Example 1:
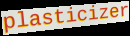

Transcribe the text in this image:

plasticizer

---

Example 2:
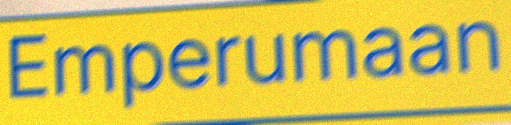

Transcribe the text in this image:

Emperumaan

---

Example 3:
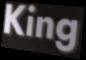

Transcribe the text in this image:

King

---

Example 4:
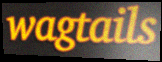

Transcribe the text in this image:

wagtails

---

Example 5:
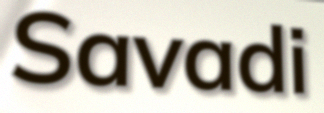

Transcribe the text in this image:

Savadi